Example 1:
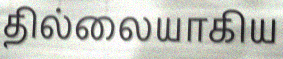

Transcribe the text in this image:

தில்லையாகிய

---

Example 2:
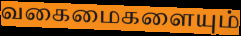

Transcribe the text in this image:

வகைமைகளையும்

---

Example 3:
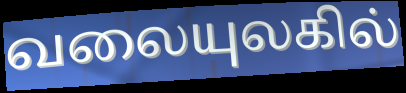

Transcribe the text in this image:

வலையுலகில்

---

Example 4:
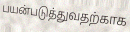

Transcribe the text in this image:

பயன்படுத்துவதற்காக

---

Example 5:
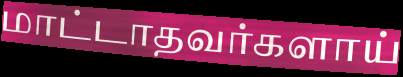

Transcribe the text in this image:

மாட்டாதவர்களாய்